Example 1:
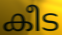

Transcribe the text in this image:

കീട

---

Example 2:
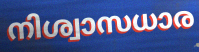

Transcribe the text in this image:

നിശ്വാസധാര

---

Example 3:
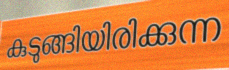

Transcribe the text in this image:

കുടുങ്ങിയിരിക്കുന്ന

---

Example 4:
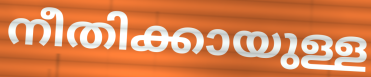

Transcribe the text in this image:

നീതിക്കായുള്ള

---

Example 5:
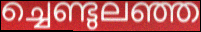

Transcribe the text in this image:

ച്ചെണ്ടുലഞ്ഞ